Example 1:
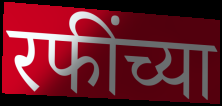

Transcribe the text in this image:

रफींच्या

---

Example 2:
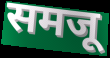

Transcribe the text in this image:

समजू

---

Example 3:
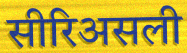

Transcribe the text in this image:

सीरिअसली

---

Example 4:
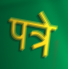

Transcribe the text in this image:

पत्रे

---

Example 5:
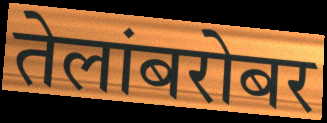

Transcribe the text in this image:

तेलांबरोबर